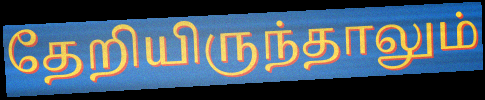
தேறியிருந்தாலும்